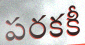
పరకకీ